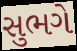
સુભગે